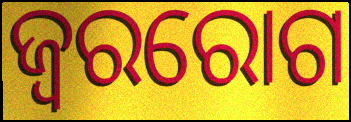
ଜ୍ୱରରୋଗ